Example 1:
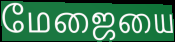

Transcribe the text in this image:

மேஜையை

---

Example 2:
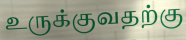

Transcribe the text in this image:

உருக்குவதற்கு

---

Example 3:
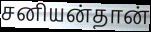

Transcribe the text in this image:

சனியன்தான்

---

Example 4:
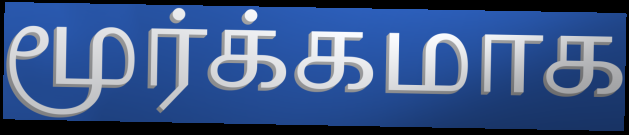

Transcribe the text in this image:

மூர்க்கமாக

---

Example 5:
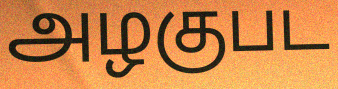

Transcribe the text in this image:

அழகுபட